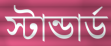
স্টান্ডার্ড